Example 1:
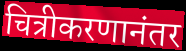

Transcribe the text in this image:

चित्रीकरणानंतर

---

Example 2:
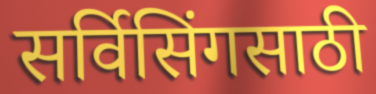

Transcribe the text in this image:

सर्विसिंगसाठी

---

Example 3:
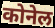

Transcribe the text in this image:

कोनेल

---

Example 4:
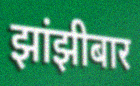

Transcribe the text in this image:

झांझीबार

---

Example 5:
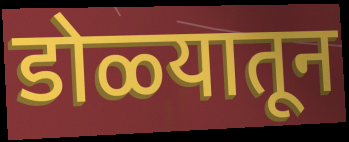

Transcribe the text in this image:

डोळ्यातून